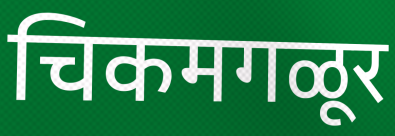
चिकमगळूर